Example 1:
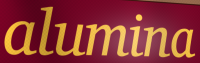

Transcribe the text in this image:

alumina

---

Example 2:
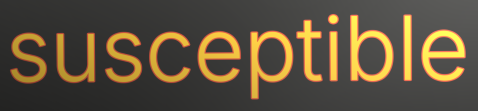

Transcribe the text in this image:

susceptible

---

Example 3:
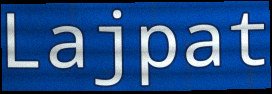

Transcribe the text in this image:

Lajpat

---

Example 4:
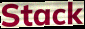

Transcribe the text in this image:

Stack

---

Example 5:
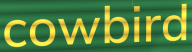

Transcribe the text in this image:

cowbird